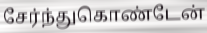
சேர்ந்துகொண்டேன்